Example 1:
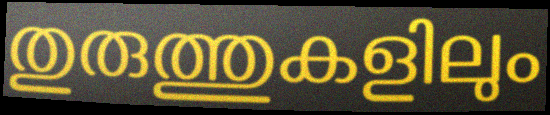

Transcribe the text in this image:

തുരുത്തുകളിലും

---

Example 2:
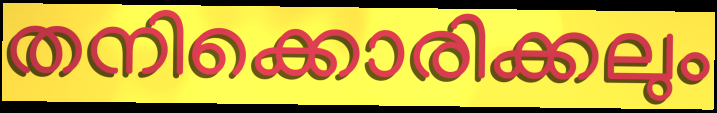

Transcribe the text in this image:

തനിക്കൊരിക്കലും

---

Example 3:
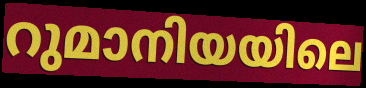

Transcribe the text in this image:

റുമാനിയയിലെ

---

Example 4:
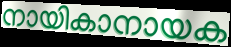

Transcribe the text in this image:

നായികാനായക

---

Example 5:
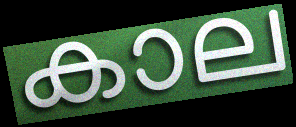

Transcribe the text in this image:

കാല